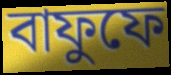
বাফুফে